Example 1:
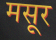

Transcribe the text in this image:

मसूर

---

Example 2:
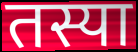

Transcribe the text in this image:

तस्या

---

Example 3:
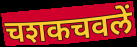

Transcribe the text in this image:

चशकचवलें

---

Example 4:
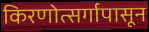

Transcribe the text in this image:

किरणोत्सर्गापासून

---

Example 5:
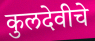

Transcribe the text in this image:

कुलदेवीचे